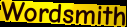
Wordsmith